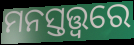
ମନସ୍ତତ୍ତ୍ଵରେ